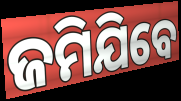
ଜମିଯିବେ